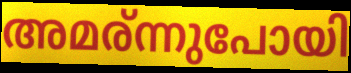
അമര്ന്നുപോയി